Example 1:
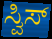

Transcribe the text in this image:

ಸ್ವಿಸ್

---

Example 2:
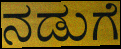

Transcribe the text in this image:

ನಡುಗೆ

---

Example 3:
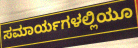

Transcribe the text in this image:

ಸಮಾರ್ಯಗಳಲ್ಲಿಯೂ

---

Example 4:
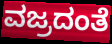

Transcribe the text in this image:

ವಜ್ರದಂತೆ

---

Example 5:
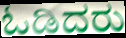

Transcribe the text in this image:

ಓಡಿದರು